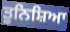
ਤੂਨਿਸ਼ਿਆ